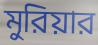
মুরিয়ার